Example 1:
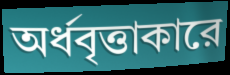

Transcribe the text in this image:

অর্ধবৃত্তাকারে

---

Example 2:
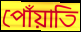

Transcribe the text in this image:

পোঁয়াতি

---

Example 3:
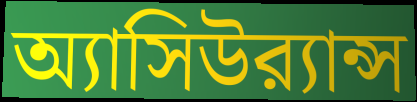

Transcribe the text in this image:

অ্যাসিউর‍্যান্স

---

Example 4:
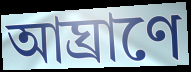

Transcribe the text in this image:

আঘ্রাণে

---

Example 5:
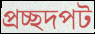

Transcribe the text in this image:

প্রচ্ছদপট